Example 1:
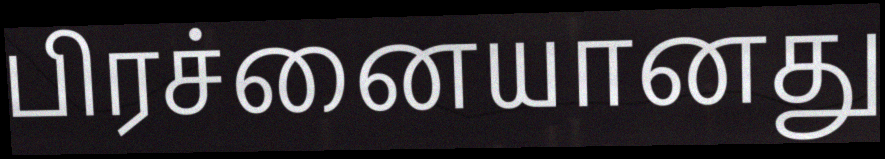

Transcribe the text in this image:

பிரச்னையானது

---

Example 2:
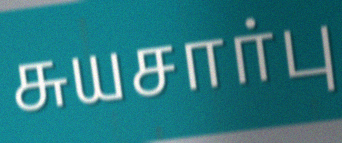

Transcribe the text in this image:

சுயசார்பு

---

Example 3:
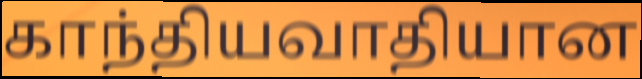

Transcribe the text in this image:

காந்தியவாதியான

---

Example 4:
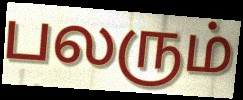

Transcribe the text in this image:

பலரும்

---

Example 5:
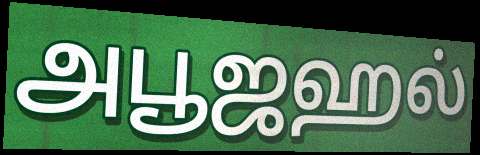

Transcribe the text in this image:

அபூஜஹல்